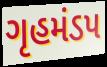
ગૃહમંડપ